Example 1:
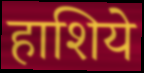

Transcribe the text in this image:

हाशिये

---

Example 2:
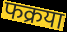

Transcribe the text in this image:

फक्रया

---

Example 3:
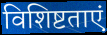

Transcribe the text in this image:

विशिष्टताएं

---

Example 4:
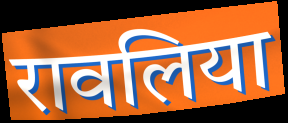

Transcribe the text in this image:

रावलिया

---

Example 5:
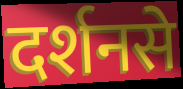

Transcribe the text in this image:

दर्शनसे